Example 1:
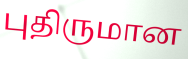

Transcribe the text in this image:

புதிருமான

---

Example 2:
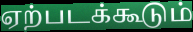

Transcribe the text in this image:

ஏற்படக்கூடும்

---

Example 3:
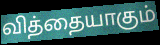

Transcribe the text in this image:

வித்தையாகும்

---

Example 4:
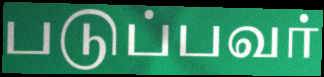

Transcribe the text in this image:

படுப்பவர்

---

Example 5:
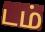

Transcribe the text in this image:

டம்